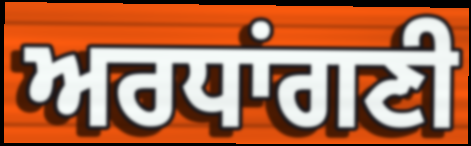
ਅਰਧਾਂਗਣੀ